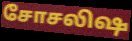
சோசலிஷ